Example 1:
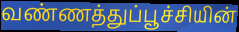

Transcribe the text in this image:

வண்ணத்துப்பூச்சியின்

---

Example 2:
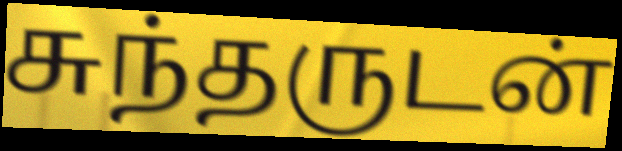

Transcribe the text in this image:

சுந்தருடன்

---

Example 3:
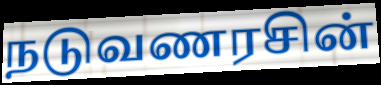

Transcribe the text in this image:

நடுவணரசின்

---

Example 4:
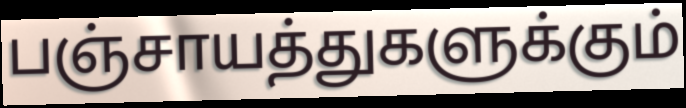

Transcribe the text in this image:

பஞ்சாயத்துகளுக்கும்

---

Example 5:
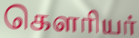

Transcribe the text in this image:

கௌரியர்